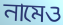
নামেও